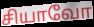
சியாவோ